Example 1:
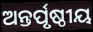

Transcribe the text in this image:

ଅନ୍ତର୍ପୃଷ୍ଠୀୟ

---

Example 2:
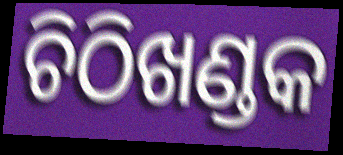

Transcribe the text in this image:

ଚିଠିଖଣ୍ଡକ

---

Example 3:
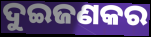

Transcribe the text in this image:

ଦୁଇଜଣକର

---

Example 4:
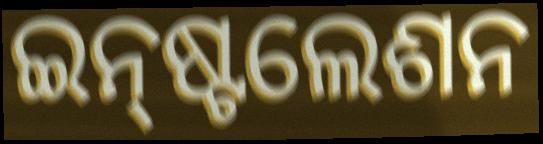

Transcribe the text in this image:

ଇନ୍‌ଷ୍ଟଲେଶନ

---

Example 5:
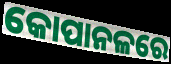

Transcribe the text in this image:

କୋପାନଳରେ